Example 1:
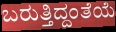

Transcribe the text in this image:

ಬರುತ್ತಿದ್ದಂತೆಯೆ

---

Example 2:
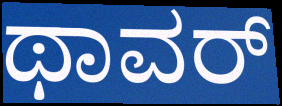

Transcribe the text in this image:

ಥಾವರ್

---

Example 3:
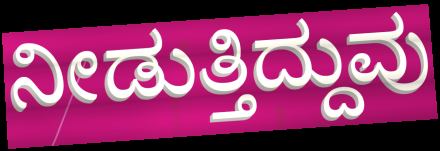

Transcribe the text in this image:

ನೀಡುತ್ತಿದ್ದುವು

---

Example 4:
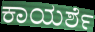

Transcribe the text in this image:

ಕಾಯರ್ಶೆ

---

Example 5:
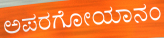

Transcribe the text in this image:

ಅಪರಗೋಯಾನಂ